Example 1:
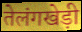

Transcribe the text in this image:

तेलंगखेड़ी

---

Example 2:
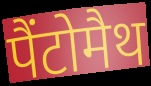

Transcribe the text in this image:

पैंटोमैथ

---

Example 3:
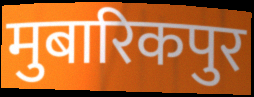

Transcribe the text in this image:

मुबारिकपुर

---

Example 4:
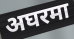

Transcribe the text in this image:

अघरमा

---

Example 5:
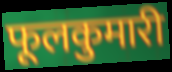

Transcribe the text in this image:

फूलकुमारी